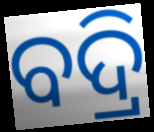
ବଦ୍ରି